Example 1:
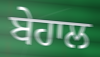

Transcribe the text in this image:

ਬੇਹਾਲ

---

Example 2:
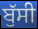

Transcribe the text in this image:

ਬੁੱਸੀ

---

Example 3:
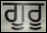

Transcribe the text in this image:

ਗੂਰੂ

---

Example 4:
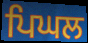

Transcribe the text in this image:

ਪਿਘਲ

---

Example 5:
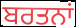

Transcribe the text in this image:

ਬਰਤਨਾਂ